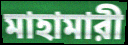
মাহামারী